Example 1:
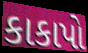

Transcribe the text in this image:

કાકાપો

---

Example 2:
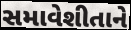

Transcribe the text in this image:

સમાવેશીતાને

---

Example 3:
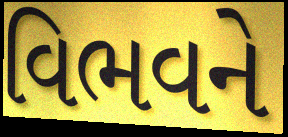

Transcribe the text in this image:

વિભવને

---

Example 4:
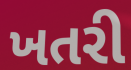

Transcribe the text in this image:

ખતરી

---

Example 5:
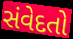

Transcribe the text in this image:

સંવેદતો